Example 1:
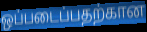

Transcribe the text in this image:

ஒப்படைப்பதற்கான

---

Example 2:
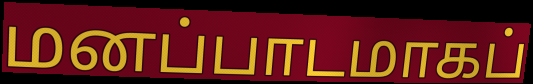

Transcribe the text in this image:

மனப்பாடமாகப்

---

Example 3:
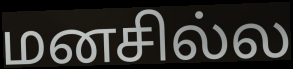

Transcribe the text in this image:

மனசில்ல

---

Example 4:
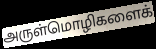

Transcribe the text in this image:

அருள்மொழிகளைக்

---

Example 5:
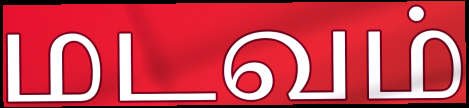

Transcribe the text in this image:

மடவம்